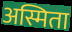
अस्मिता